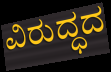
ವಿರುದ್ಧದ